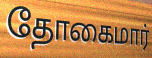
தோகைமார்